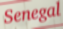
Senegal